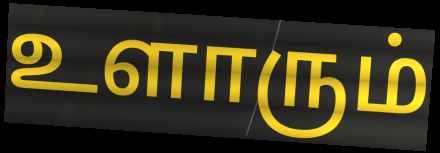
உளாரும்